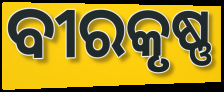
ବୀରକୃଷ୍ଣ